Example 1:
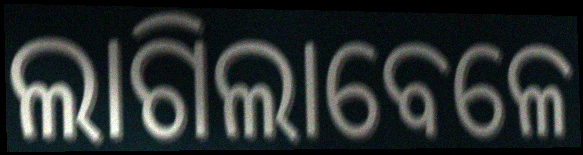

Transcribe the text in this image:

ଲାଗିଲାବେଳେ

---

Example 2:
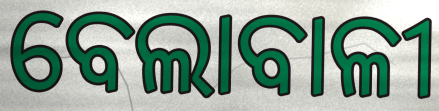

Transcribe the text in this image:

ବେଲାବାଳୀ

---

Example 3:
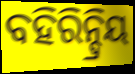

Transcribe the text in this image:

ବହିରିନ୍ଦ୍ରିୟ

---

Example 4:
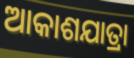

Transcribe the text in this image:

ଆକାଶଯାତ୍ରା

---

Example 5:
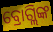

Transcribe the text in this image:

ବ୍ରୋଗ୍ଲିଙ୍କ